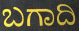
ಬಗಾದಿ